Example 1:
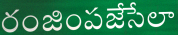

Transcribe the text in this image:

రంజింపజేసేలా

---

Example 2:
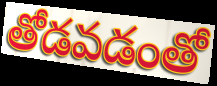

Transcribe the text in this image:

తోడవడంతో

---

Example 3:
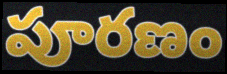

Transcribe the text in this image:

పూరణం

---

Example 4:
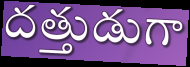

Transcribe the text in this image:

దత్తుడుగా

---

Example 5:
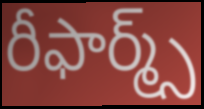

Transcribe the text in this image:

రీఫార్మ్స్